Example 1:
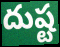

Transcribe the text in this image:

దుష్ట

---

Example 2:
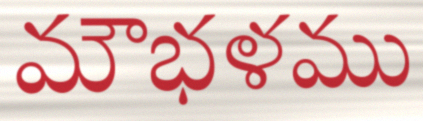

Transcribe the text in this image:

మౌభళము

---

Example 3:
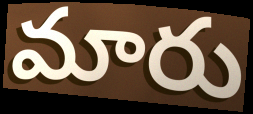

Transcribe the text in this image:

మారు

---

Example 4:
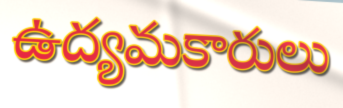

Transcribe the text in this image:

ఉద్యమకారులు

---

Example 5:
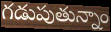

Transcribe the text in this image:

గడుపుతున్నాం